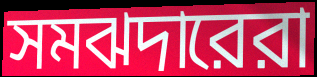
সমঝদারেরা